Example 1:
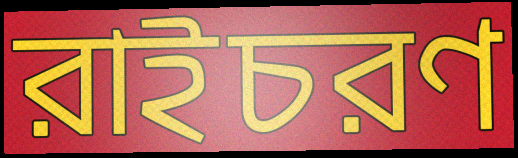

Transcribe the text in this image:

রাইচরণ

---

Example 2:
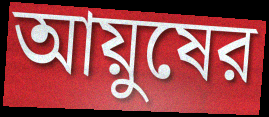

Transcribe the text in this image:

আয়ুষের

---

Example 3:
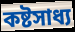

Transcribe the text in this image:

কষ্টসাধ্য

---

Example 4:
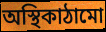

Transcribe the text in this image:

অস্থিকাঠামো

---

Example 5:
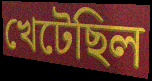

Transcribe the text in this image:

খেটেছিল